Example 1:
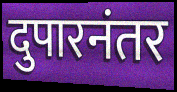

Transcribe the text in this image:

दुपारनंतर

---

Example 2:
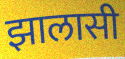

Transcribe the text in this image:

झालासी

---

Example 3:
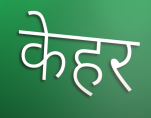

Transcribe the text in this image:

केहर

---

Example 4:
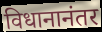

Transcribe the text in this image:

विधानानंतर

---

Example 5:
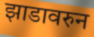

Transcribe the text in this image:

झाडावरुन